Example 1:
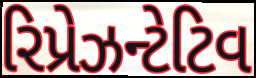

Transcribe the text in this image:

રિપ્રેઝન્ટેટિવ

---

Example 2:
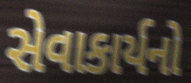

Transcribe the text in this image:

સેવાકાર્યનો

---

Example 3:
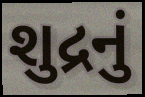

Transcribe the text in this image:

શુદ્રનું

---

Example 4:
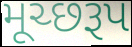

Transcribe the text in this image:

મૂચ્છરૂપ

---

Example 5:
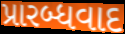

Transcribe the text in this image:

પ્રારબ્ધવાદ